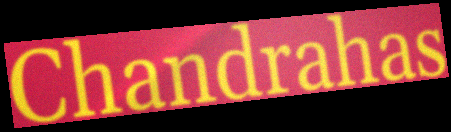
Chandrahas